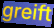
greift